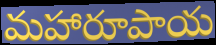
మహారూపాయ